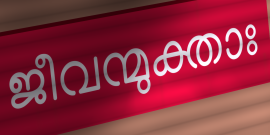
ജീവന്മുക്താഃ